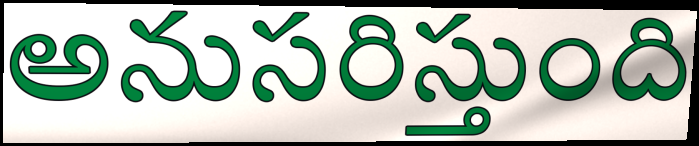
అనుసరిస్తుంది